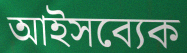
আইসব্যেক